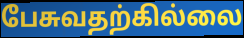
பேசுவதற்கில்லை